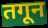
तगून